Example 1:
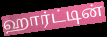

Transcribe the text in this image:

ஹார்ட்டின்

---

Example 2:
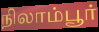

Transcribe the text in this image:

நிலாம்பூர்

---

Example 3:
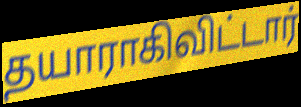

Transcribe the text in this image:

தயாராகிவிட்டார்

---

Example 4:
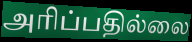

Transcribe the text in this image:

அரிப்பதில்லை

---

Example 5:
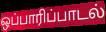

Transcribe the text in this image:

ஒப்பாரிப்பாடல்